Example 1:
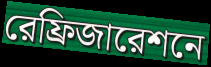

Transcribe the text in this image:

রেফ্রিজারেশনে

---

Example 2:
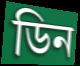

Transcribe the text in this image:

ডিন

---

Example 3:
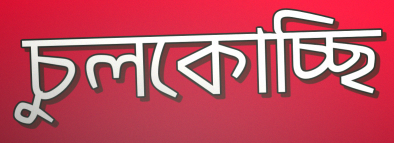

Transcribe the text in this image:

চুলকোচ্ছি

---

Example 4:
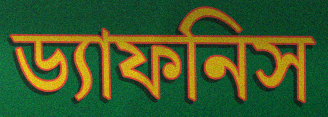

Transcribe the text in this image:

ড্যাফনিস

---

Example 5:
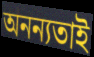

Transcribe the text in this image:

অনন্যতাই